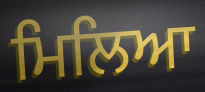
ਮਿਲਿਆ